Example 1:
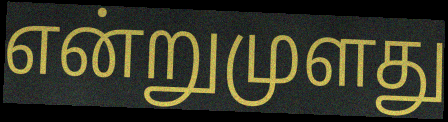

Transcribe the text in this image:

என்றுமுளது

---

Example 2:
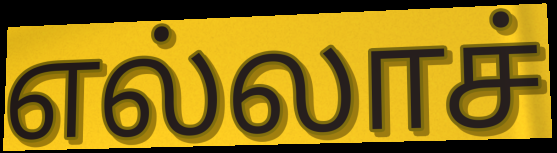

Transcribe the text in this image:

எல்லாச்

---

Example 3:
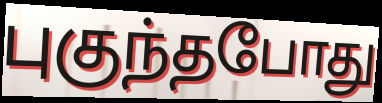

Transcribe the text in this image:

புகுந்தபோது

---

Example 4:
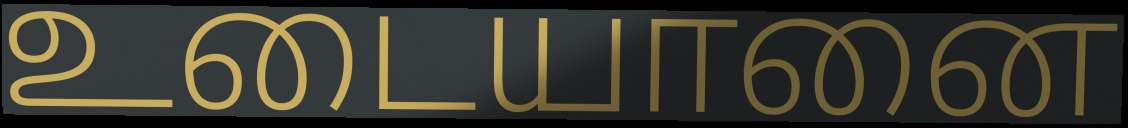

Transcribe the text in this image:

உடையானை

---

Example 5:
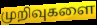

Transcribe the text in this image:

முறிவுகளை